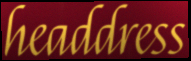
headdress